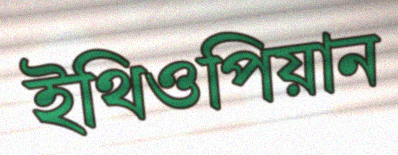
ইথিওপিয়ান